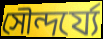
সৌন্দর্য্যে